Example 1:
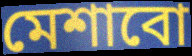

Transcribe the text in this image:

মেশাবো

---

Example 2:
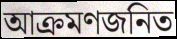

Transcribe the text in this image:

আক্রমণজনিত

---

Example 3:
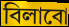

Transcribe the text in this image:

বিলাবো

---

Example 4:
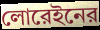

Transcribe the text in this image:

লোরেইনের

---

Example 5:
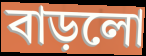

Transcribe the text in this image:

বাড়লো